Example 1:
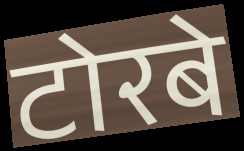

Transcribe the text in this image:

टोरबे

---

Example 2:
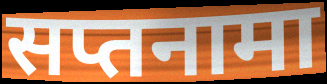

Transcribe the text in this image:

सप्तनामा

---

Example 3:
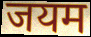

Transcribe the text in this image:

जयम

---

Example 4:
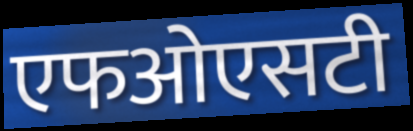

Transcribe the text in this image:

एफओएसटी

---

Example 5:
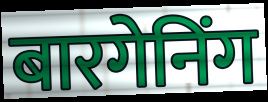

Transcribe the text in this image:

बारगेनिंग